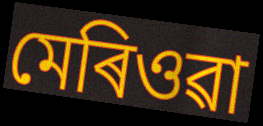
মেৰিওৱা